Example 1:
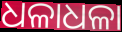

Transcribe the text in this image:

ଧଳାଧଳା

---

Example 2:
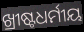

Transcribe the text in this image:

ଖ୍ରୀଷ୍ଟଧର୍ମୀୟ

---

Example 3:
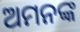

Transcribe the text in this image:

ଅମନଙ୍କ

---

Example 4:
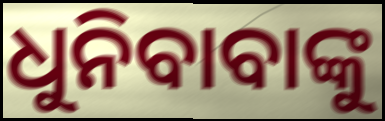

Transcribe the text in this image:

ଧୁନିବାବାଙ୍କୁ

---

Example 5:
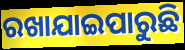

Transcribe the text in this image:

ରଖାଯାଇପାରୁଛି